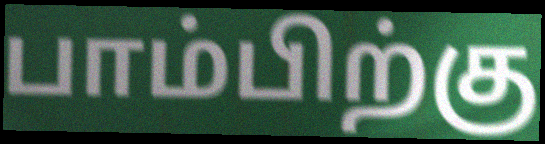
பாம்பிற்கு